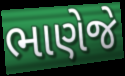
ભાણેજે